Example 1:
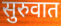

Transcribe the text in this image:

सुरुवात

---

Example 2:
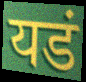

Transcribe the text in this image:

यडं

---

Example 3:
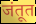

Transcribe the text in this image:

जंतूत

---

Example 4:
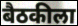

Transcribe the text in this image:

बैठकीला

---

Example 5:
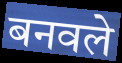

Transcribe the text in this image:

बनवले